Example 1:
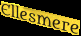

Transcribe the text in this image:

Ellesmere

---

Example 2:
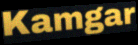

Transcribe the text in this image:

Kamgar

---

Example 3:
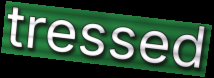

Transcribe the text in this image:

tressed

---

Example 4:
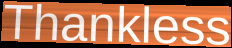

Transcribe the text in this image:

Thankless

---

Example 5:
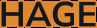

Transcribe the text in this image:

HAGE